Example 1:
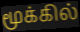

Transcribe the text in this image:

மூக்கில்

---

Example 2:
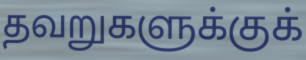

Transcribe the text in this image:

தவறுகளுக்குக்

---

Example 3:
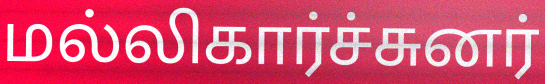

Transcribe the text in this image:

மல்லிகார்ச்சுனர்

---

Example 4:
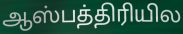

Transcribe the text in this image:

ஆஸ்பத்திரியில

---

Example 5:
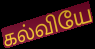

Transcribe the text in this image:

கல்வியே